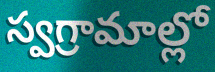
స్వగ్రామాల్లో